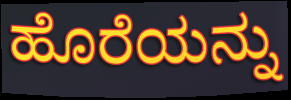
ಹೊರೆಯನ್ನು